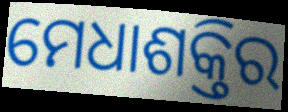
ମେଧାଶକ୍ତିର